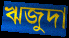
ঋজুদা